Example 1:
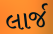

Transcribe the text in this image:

લાર્જ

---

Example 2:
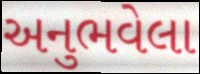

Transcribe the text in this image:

અનુભવેલા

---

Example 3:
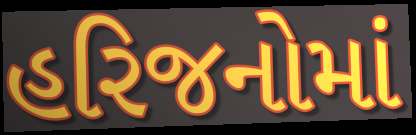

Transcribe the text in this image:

હરિજનોમાં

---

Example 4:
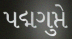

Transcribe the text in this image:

પદ્મગુપ્તે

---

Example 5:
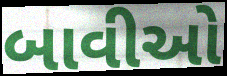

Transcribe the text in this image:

બાવીઓ